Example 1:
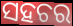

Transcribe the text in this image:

ସହଚର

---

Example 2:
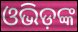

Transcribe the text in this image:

ଓଭିଡ଼ଙ୍କ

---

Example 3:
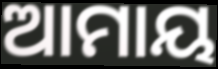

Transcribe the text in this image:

ଆମାୟ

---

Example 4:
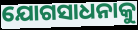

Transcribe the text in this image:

ଯୋଗସାଧନାକୁ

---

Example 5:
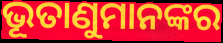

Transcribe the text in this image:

ଭୂତାଣୁମାନଙ୍କର